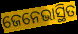
ଜେନେଭାସ୍ଥିତ